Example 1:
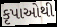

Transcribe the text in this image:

કૃપાઓથી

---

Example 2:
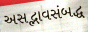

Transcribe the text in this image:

અસદ્ભાવસંબદ્ધ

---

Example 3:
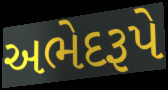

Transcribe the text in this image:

અભેદરૂપે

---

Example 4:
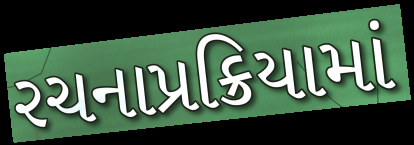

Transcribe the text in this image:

રચનાપ્રક્રિયામાં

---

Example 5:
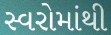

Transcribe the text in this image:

સ્વરોમાંથી